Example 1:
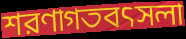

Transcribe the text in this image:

শরণাগতবৎসলা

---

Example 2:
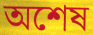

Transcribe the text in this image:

অশেষ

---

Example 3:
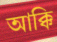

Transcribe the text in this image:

আক্কি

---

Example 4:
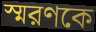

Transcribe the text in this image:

স্মরণকে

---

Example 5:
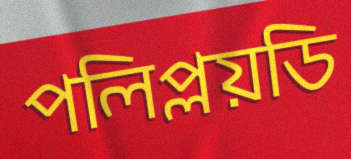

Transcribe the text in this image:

পলিপ্লয়ডি